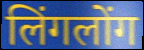
लिंगलोंग